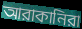
আরাকানিরা